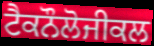
ਟੈਕਨੌਲੋਜੀਕਲ